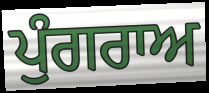
ਪੁੰਗਰਾਅ